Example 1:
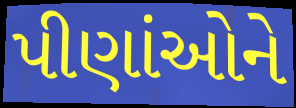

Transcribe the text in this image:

પીણાંઓને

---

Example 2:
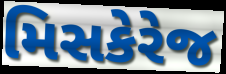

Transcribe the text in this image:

મિસકેરેજ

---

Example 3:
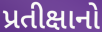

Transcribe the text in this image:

પ્રતીક્ષાનો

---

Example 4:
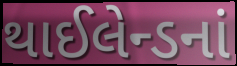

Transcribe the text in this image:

થાઈલેન્ડનાં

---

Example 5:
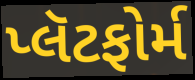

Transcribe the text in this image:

પ્લૅટફોર્મ